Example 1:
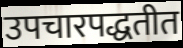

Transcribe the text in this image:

उपचारपद्धतीत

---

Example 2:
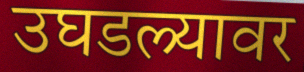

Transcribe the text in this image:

उघडल्यावर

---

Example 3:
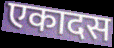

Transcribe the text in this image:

एकादस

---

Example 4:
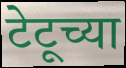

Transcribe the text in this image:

टेटूच्या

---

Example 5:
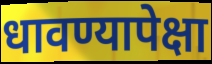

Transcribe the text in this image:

धावण्यापेक्षा